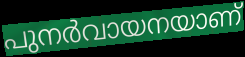
പുനർവായനയാണ്